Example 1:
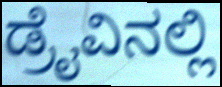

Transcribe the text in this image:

ಡ್ರೈವಿನಲ್ಲಿ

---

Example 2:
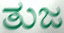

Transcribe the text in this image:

ತುಜ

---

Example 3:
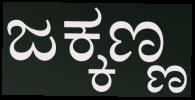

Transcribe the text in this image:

ಜಕ್ಕಣ್ಣ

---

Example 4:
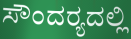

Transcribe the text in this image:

ಸೌಂದರ‍್ಯದಲ್ಲಿ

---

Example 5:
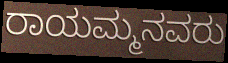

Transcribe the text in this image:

ರಾಯಮ್ಮನವರು